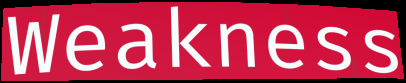
Weakness